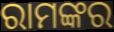
ରାମଙ୍କର